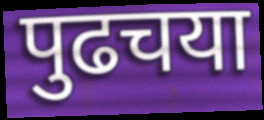
पुढचया